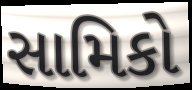
સામિકો